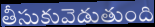
తీసుకువెడుతుంది